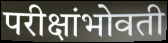
परीक्षांभोवती